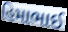
હિમાભાઈ